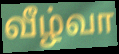
வீழ்வா